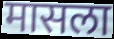
मासला